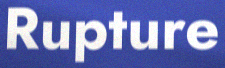
Rupture